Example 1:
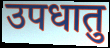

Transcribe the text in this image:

उपधातु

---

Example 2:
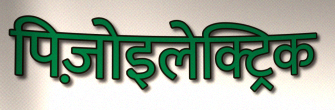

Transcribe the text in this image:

पिज़ोइलेक्ट्रिक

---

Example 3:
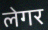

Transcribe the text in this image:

लेगर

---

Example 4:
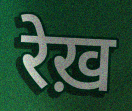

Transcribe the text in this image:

रेख़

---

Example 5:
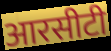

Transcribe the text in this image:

आरसीटी